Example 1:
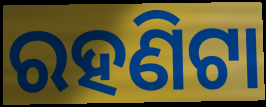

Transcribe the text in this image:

ରହଣିଟା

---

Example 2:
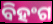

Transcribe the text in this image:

ବିହଂଗ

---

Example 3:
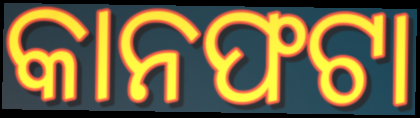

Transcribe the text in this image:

କାନଫଟା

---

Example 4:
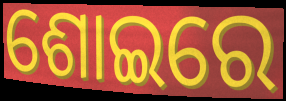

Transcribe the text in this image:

ଶୋଇରେ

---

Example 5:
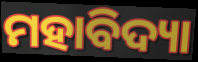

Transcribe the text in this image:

ମହାବିଦ୍ୟା